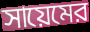
সায়েমের